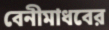
বেনীমাধবের